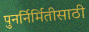
पुनर्निर्मितीसाठी